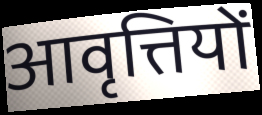
आवृत्तियों